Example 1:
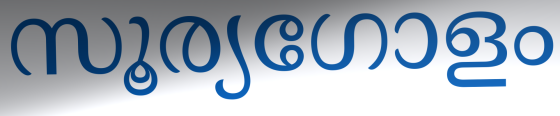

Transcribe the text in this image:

സൂര്യഗോളം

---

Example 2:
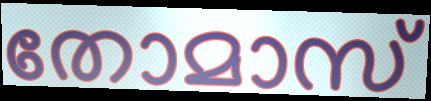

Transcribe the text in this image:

തോമാസ്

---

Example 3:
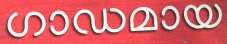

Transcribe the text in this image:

ഗാഡമായ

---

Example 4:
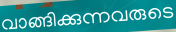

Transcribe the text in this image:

വാങ്ങിക്കുന്നവരുടെ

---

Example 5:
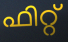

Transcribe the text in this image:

ഫിറ്റ്